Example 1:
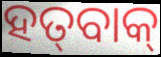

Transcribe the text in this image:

ହତ୍‌ବାକ୍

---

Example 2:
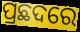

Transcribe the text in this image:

ପ୍ରଛଦରେ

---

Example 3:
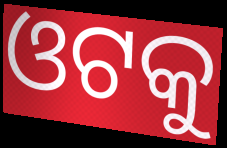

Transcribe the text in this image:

ଓଟକୁ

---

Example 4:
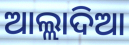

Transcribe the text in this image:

ଆଲ୍ଲାଦିଆ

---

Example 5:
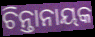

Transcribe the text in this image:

ଚିନ୍ତାନାୟକ